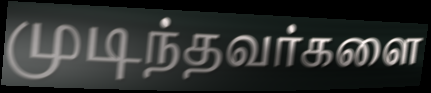
முடிந்தவர்களை